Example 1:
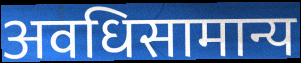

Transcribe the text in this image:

अवधिसामान्य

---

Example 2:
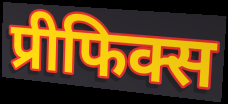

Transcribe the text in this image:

प्रीफिक्स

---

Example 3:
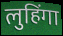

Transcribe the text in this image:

लुहिंगा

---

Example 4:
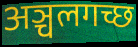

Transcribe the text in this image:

अञ्चलगच्छ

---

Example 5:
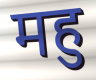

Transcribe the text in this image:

महु